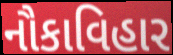
નૌકાવિહાર